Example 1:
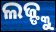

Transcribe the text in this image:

ଲଜ୍ଙ୍କୁ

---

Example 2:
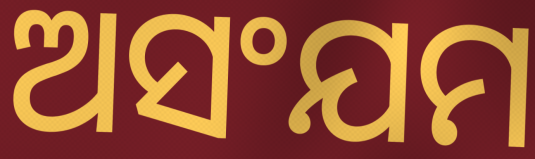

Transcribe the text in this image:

ଅସଂଯମ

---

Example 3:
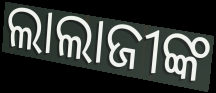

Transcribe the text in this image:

ଲାଲାଜୀଙ୍କ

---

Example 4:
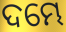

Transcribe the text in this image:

ଦମ୍ଭେ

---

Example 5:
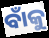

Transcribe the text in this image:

ବାଁକୁ